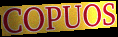
COPUOS